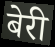
बेरी